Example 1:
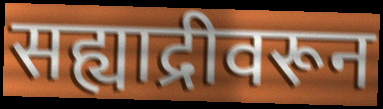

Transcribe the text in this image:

सह्याद्रीवरून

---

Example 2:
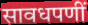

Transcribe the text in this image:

सावधपणीं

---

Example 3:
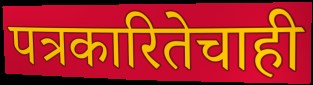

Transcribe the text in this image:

पत्रकारितेचाही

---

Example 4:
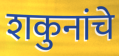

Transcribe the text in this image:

शकुनांचे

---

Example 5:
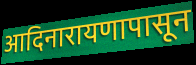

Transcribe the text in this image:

आदिनारायणापासून